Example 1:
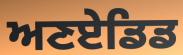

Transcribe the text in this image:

ਅਣਏਡਿਡ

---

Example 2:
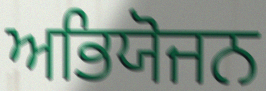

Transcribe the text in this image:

ਅਭਿਯੋਜਨ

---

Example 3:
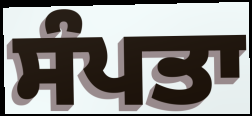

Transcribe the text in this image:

ਸੰਪਤਾ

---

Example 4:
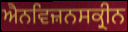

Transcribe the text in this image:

ਐਨਵਿਜ਼ਨਸਕ੍ਰੀਨ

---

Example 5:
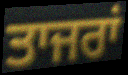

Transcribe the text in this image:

ਤਾਜਰਾਂ